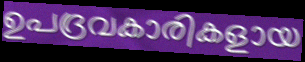
ഉപദ്രവകാരികളായ